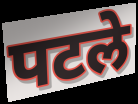
पटले